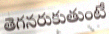
తెగనరుకుతుంటే